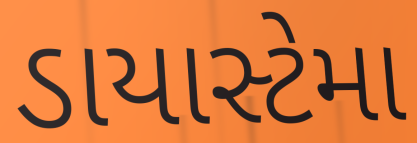
ડાયાસ્ટેમા